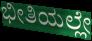
ಭೀತಿಯಲ್ಲೇ